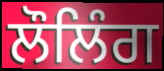
ਲੌਲਿੰਗ